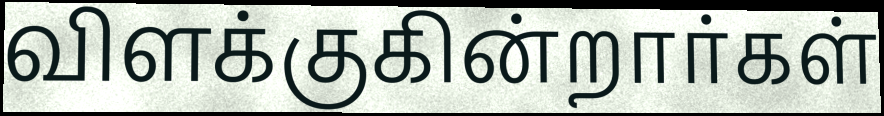
விளக்குகின்றார்கள்